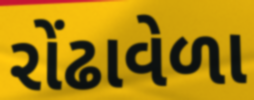
રોંઢાવેળા